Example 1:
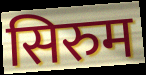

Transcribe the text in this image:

सिरुम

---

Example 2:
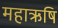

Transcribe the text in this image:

महाऋषि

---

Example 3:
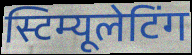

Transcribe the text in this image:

स्टिम्यूलेटिंग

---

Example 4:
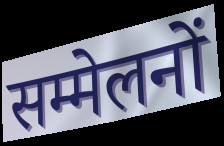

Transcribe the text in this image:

सम्मेलनों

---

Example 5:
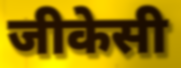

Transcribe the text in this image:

जीकेसी